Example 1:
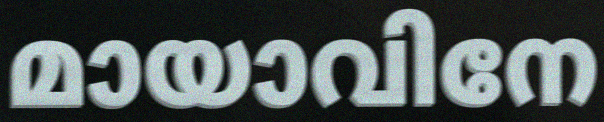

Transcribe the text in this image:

മായാവിനേ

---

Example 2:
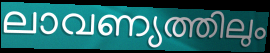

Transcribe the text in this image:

ലാവണ്യത്തിലും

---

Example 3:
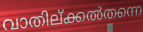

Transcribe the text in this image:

വാതില്ക്കൽതന്നെ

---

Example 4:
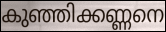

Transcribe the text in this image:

കുഞ്ഞിക്കണ്ണനെ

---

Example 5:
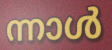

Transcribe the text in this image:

ന്നാൾ